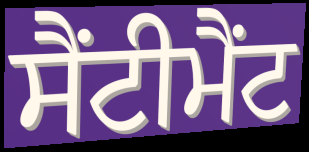
ਸੈਂਟੀਮੈਂਟ